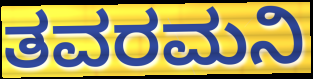
ತವರಮನಿ